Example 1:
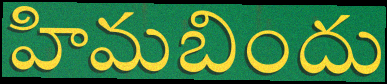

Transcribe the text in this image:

హిమబిందు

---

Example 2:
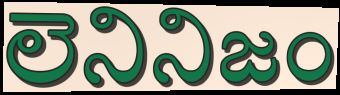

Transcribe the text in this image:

లెనినిజం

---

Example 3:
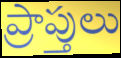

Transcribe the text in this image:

ప్రాప్తులు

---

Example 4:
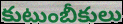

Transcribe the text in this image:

కుటుంబీకులు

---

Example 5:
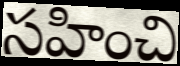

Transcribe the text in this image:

సహించి